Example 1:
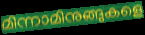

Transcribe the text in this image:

മിന്നാമിനുങ്ങുകളെ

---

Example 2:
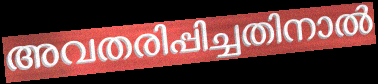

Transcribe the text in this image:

അവതരിപ്പിച്ചതിനാൽ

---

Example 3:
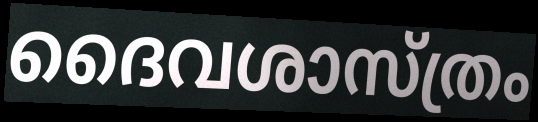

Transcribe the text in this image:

ദൈവശാസ്ത്രം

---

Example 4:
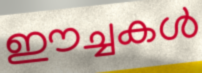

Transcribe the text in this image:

ഈച്ചകൾ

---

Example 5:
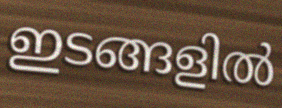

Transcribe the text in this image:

ഇടങ്ങളിൽ